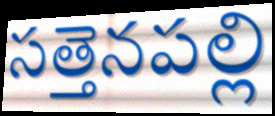
సత్తెనపల్లి